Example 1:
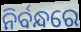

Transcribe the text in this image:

ନିର୍ବନ୍ଧରେ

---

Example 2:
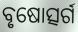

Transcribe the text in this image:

ବୃଷୋତ୍ସର୍ଗ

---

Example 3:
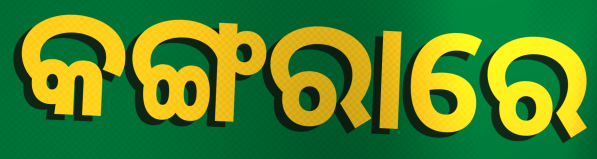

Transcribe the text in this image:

କଙ୍ଗରାରେ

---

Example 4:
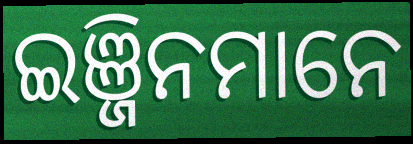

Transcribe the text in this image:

ଇଞ୍ଜିନମାନେ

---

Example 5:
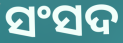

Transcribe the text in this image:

ସଂସଦ